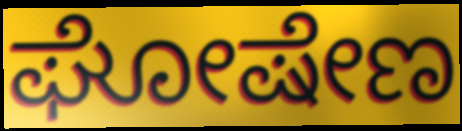
ಘೋಷೇಣ